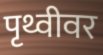
पृथ्वीवर